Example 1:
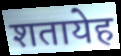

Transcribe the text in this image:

शतायेह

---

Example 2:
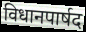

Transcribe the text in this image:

विधानपार्षद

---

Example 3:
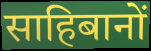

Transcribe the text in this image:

साहिबानों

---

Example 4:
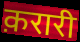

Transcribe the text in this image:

क़रारी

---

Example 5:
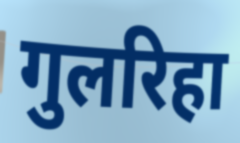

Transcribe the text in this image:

गुलरिहा